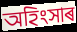
অহিংসাৰ